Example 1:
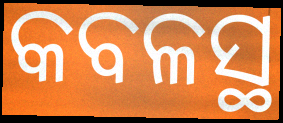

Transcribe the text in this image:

କବଳସ୍ଥ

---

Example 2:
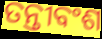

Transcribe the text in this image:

ତନ୍ତୀବଂଶ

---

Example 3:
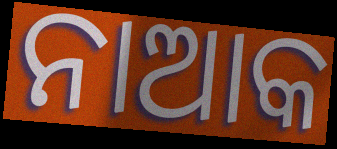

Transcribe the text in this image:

ନାଆକ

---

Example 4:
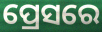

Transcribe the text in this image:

ପ୍ରେସରେ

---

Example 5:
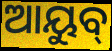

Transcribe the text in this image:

ଆୟୁବ୍